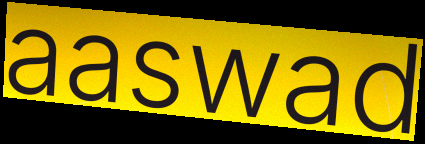
aaswad